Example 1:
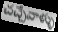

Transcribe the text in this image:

చచ్చేవాళ్ళు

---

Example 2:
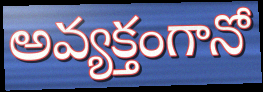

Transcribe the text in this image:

అవ్యక్తంగానో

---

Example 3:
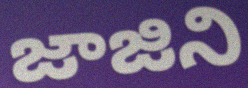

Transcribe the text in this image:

జాజిని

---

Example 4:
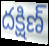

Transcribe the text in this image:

దక్షిణ్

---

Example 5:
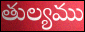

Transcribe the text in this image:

తుల్యము